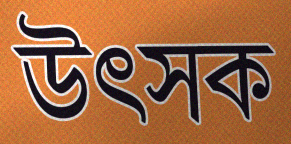
উৎসক